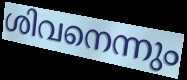
ശിവനെന്നും